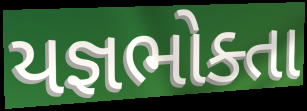
યજ્ઞભોક્તા